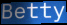
Betty